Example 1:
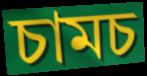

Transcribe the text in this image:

চামচ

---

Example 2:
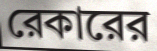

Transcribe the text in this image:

রেকারের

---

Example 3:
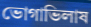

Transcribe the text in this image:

ভোগাভিলাষ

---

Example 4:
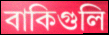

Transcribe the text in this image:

বাকিগুলি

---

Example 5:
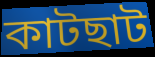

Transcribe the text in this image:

কাটছাট